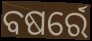
ବଷର୍ରେ